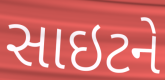
સાઇટને